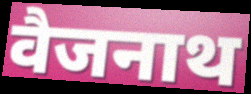
वैजनाथ